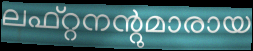
ലഫ്റ്റനന്റുമാരായ